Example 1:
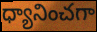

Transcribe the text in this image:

ధ్యానించగా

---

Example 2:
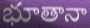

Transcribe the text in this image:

భూతానా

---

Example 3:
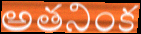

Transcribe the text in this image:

అతనింక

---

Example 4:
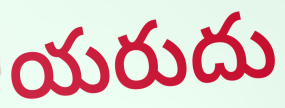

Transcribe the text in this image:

యరుదు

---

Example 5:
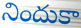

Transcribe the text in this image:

నిందుకా